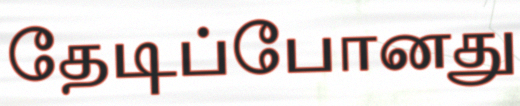
தேடிப்போனது